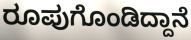
ರೂಪುಗೊಂಡಿದ್ದಾನೆ